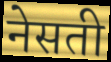
नेसती